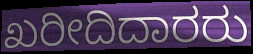
ಖರೀದಿದಾರರು